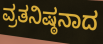
ವ್ರತನಿಷ್ಠನಾದ